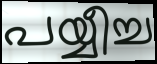
പയ്യീച്ച